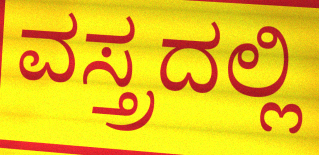
ವಸ್ತ್ರದಲ್ಲಿ